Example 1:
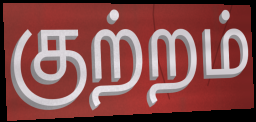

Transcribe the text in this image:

குற்றம்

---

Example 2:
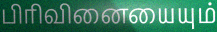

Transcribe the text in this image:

பிரிவினையையும்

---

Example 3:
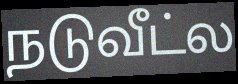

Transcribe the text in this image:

நடுவீட்ல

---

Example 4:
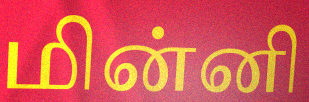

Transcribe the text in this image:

மின்னி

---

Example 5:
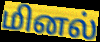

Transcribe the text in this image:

மினல்